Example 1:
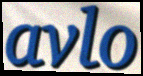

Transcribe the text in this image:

avlo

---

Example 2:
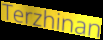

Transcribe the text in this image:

Terzhinan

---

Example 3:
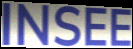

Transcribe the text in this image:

INSEE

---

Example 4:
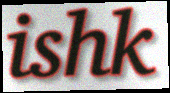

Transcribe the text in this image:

ishk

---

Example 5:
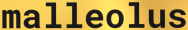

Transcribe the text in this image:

malleolus